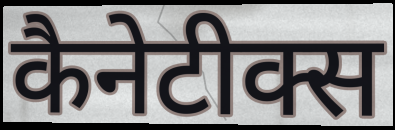
कैनेटीक्स